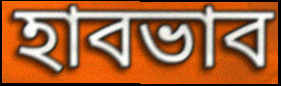
হাবভাব